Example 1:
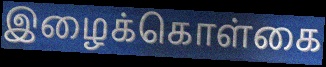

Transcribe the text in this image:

இழைக்கொள்கை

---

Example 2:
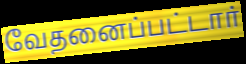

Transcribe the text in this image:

வேதனைப்பட்டார்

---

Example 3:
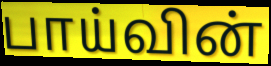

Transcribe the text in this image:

பாய்வின்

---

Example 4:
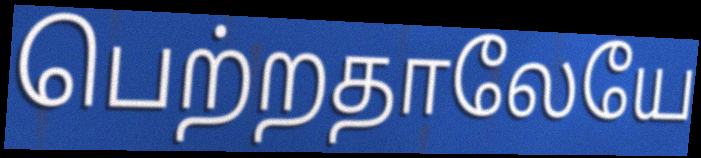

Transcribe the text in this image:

பெற்றதாலேயே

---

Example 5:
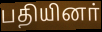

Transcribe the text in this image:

பதியினர்